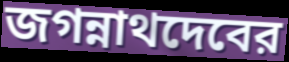
জগন্নাথদেবের